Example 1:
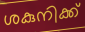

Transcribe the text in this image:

ശകുനിക്ക്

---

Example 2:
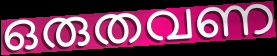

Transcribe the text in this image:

ഒരുതവണ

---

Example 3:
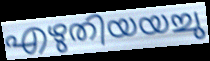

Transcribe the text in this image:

എഴുതിയയച്ചു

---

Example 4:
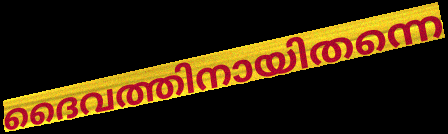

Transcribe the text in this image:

ദൈവത്തിനായിതന്നെ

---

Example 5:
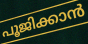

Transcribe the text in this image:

പൂജിക്കാൻ